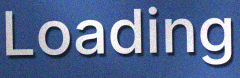
Loading